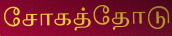
சோகத்தோடு